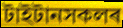
টাইটানসকলৰ